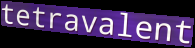
tetravalent